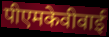
पीएमकेवीवाई